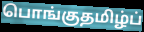
பொங்குதமிழ்ப்